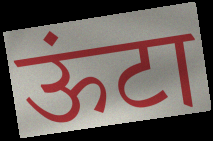
ऊंटा